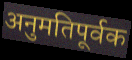
अनुमतिपूर्वक